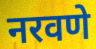
नरवणे